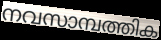
നവസാമ്പത്തിക